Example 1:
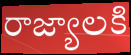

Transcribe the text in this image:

రాజ్యాలకి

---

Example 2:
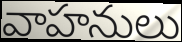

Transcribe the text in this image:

వాహనులు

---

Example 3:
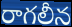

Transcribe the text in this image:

రాగలీన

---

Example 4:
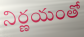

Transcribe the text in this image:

నిర్ణయంతో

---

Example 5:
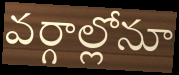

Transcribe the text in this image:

వర్గాల్లోనూ